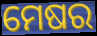
ମେଷର